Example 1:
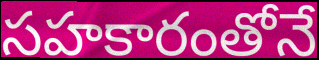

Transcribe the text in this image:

సహకారంతోనే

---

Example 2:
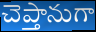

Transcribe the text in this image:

చెప్తానుగా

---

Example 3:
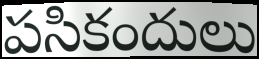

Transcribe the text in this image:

పసికందులు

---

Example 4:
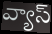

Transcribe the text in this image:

వ్యాస్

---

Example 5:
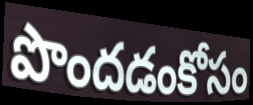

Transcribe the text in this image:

పొందడంకోసం